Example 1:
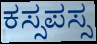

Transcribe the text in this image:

ಕಸ್ಸಪಸ್ಸ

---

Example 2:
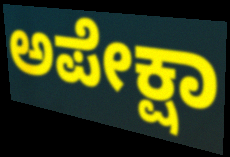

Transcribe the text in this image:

ಅಪೇಕ್ಷಾ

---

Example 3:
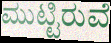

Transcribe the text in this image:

ಮುಟ್ಟಿರುವೆ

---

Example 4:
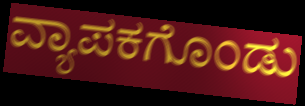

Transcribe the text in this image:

ವ್ಯಾಪಕಗೊಂಡು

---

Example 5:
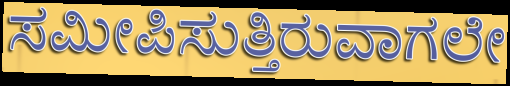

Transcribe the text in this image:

ಸಮೀಪಿಸುತ್ತಿರುವಾಗಲೇ